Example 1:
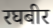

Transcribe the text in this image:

रघबीर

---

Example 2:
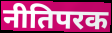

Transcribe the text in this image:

नीतिपरक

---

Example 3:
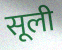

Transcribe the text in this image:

सूली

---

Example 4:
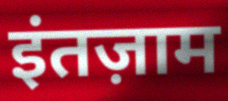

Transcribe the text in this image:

इंतज़ाम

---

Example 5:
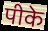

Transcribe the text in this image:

पीके